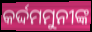
କର୍ଦ୍ଦମମୁନୀଙ୍କ